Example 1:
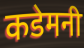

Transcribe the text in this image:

कडेमनी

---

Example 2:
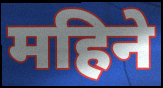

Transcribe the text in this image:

महिने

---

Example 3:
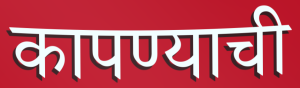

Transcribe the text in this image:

कापण्याची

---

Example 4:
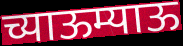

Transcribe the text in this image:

च्याऊम्याऊ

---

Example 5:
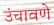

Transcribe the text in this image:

उंचावणे